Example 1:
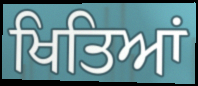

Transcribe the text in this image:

ਖਿਤਿਆਂ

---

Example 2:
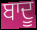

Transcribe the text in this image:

ਬਾਦੂ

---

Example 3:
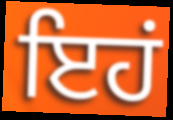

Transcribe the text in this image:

ਇਹਂ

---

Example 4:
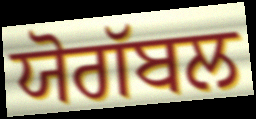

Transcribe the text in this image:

ਯੋਗੱਬਲ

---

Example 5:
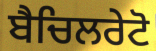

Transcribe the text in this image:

ਬੈਚਿਲਰੇਟੋ